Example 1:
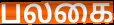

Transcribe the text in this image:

பலகை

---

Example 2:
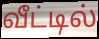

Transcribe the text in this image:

வீட்டில்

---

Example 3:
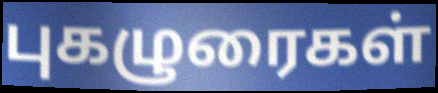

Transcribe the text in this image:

புகழுரைகள்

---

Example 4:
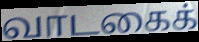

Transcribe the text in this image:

வாடகைக்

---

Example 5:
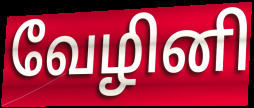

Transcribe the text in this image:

வேழினி